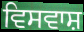
ਵਿਸਵਾਸ਼